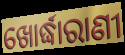
ଖୋର୍ଦ୍ଧାରାଣୀ